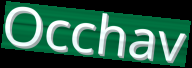
Occhav